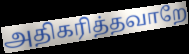
அதிகரித்தவாறே